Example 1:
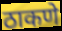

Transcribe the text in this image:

ठाकणे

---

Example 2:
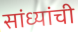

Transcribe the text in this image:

सांध्यांची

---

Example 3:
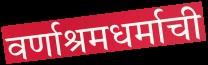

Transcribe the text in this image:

वर्णाश्रमधर्माची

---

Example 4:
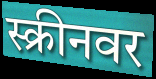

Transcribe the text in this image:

स्क्रीनवर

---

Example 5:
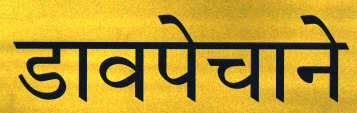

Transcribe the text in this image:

डावपेचाने